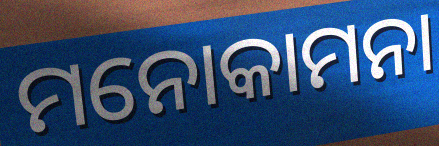
ମନୋକାମନା